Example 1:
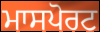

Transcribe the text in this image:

ਮਾਸਪੋਰਟ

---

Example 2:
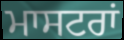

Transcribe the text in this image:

ਮਾਸਟਰਾਂ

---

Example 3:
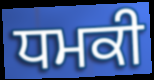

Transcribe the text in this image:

ਧਮਕੀ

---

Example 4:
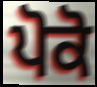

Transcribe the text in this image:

ਪੋਕੋ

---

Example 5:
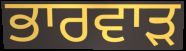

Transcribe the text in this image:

ਭਾਰਵਾੜ